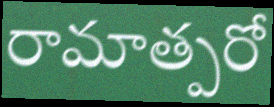
రామాత్పరో